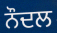
ਨੌਦਲ